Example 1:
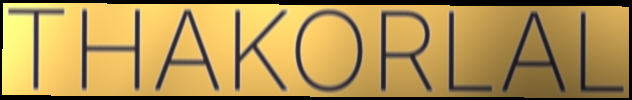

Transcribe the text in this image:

THAKORLAL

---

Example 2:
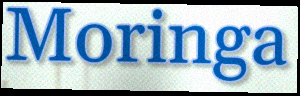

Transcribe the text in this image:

Moringa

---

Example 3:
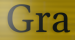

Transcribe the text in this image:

Gra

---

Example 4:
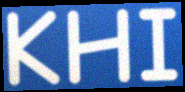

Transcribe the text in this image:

KHI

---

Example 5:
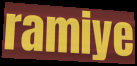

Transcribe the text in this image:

ramiye